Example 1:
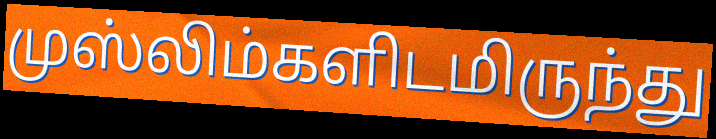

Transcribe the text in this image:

முஸ்லிம்களிடமிருந்து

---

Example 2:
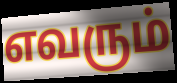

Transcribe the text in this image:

எவரும்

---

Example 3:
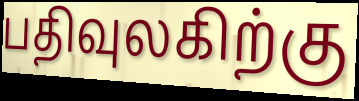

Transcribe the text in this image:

பதிவுலகிற்கு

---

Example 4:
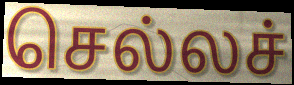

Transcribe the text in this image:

செல்லச்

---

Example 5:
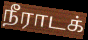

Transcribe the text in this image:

நீராடக்